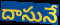
దాసునే